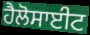
ਹੈਲੋਸਾਈਟ